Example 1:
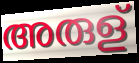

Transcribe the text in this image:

അരുള്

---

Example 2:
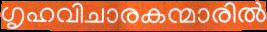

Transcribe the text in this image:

ഗൃഹവിചാരകന്മാരിൽ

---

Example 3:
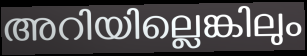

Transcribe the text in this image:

അറിയില്ലെങ്കിലും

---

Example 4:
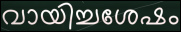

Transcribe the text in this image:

വായിച്ചശേഷം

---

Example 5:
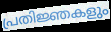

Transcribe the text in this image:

പ്രതിജ്ഞകളും